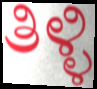
ತಿಳ್ಳಿ